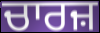
ਚਾਰਜ਼